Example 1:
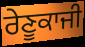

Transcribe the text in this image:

ਰੇਣੂਕਾਜੀ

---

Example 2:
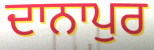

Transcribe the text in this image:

ਦਾਨਾਪੁਰ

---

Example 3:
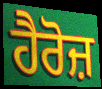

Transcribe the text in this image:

ਹੈਰੋਜ਼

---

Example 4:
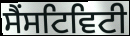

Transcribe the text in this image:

ਸੈਂਸਟਿਵਿਟੀ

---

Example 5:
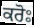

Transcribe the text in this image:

ਕਰੋਃ